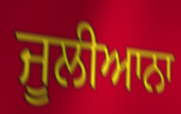
ਜੂਲੀਆਨਾ